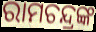
ରାମଚନ୍ଦ୍ରଙ୍କ